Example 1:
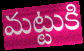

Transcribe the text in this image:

మట్టుకి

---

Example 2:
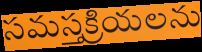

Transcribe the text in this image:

సమస్తక్రియలను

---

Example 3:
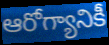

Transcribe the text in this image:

ఆరోగ్యానికీ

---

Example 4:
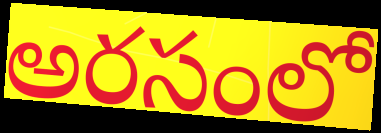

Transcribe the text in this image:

అరసంలో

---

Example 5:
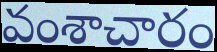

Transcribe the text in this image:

వంశాచారం